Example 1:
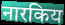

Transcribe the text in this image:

नारकिय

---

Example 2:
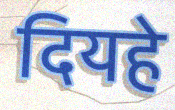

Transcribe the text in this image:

दियहे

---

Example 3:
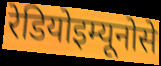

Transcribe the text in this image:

रेडियोइम्यूनोसे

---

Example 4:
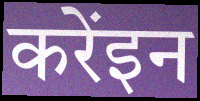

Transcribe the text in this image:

करेंइन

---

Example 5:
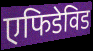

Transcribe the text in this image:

एफिडेविड